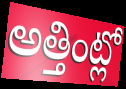
అత్తింట్లో